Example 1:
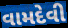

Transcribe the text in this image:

વામદેવી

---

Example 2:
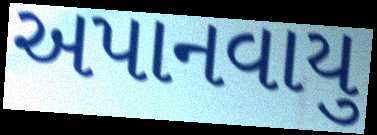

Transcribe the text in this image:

અપાનવાયુ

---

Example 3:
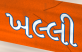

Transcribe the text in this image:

ખલ્લી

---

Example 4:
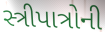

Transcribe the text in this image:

સ્ત્રીપાત્રોની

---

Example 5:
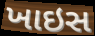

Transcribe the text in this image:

ખાઇસ